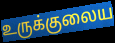
உருக்குலைய